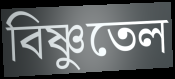
বিষ্ণুতেল